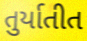
તુર્યાતીત